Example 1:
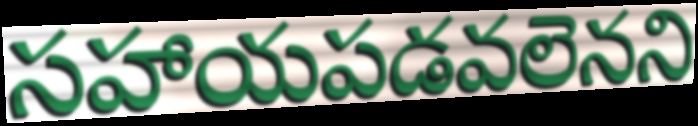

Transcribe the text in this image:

సహాయపడవలెనని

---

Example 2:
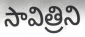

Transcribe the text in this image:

సావిత్రిని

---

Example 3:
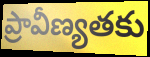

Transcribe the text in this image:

ప్రావీణ్యతకు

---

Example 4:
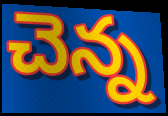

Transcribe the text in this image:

చెన్న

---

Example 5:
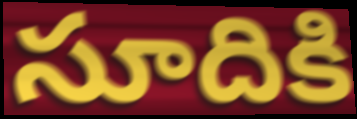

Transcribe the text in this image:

సూదికి